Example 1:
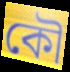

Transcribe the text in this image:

কৌ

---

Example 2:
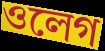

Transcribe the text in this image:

ওলেগ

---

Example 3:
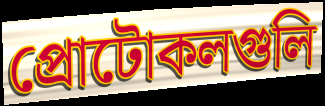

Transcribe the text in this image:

প্রোটোকলগুলি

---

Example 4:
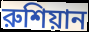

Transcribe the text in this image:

রুশিয়ান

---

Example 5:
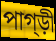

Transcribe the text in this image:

পাগ্ড়ী